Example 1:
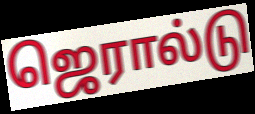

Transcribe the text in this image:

ஜெரால்டு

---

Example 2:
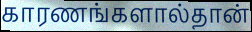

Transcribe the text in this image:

காரணங்களால்தான்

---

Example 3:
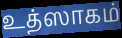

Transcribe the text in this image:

உத்ஸாகம்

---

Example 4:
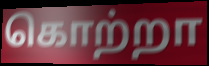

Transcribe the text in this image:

கொற்றா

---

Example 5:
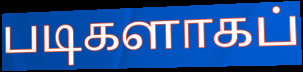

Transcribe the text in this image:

படிகளாகப்